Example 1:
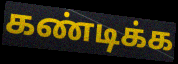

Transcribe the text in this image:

கண்டிக்க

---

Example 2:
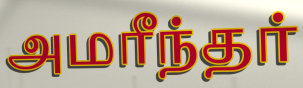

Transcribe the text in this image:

அமரீந்தர்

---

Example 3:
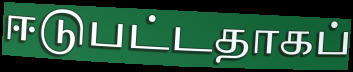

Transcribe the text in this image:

ஈடுபட்டதாகப்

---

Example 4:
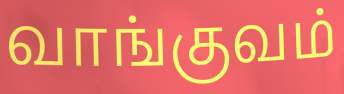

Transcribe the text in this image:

வாங்குவம்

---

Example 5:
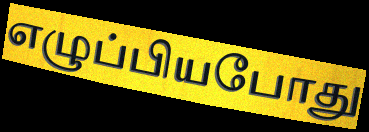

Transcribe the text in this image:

எழுப்பியபோது